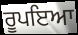
ਰੂਪਇਆ